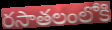
రసాతలంలోకి